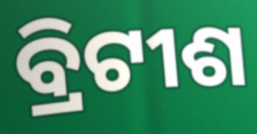
ବ୍ରିଟୀଶ